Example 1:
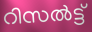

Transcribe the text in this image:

റിസൽട്ട്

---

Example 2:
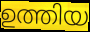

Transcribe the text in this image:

ഉത്തിയ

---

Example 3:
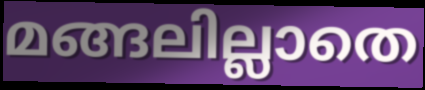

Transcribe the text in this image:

മങ്ങലില്ലാതെ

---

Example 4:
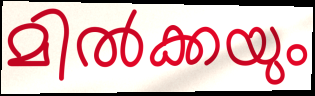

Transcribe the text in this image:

മിൽക്കയും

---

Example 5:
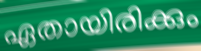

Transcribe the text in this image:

ഏതായിരിക്കും